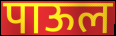
पाऊल